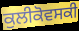
ਕੁਲੀਕੋਵਸਕੀ